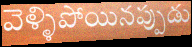
వెళ్ళిపోయినప్పుడు